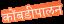
कोंबडीपालन